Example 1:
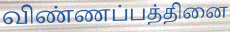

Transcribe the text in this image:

விண்ணப்பத்தினை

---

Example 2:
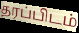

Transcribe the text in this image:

தரப்பிடம்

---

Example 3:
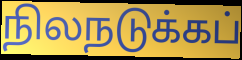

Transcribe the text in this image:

நிலநடுக்கப்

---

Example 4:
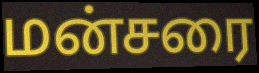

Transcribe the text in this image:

மன்சரை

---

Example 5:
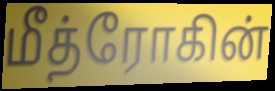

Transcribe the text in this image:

மீத்ரோகின்